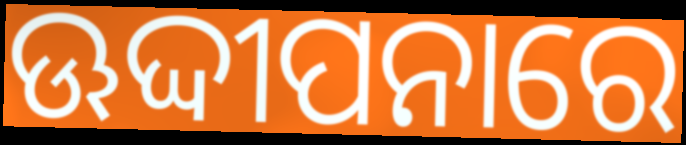
ଊଦ୍ଦୀପନାରେ